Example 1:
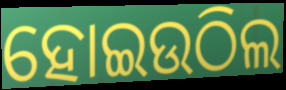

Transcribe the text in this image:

ହୋଇଉଠିଲ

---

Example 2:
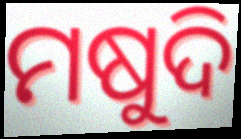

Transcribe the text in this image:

ମଷୁଦି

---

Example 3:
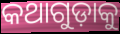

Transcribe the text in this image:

କଥାଗୁଡ଼ାକୁ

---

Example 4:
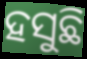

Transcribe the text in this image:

ହସୁଛି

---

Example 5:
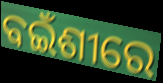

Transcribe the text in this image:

ବଇଁଶୀରେ